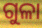
ଗୁଳା